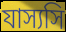
যাস্যসি